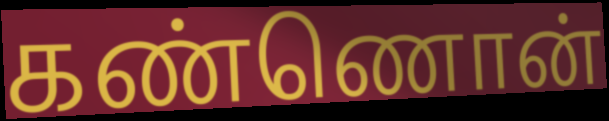
கண்ணொன்